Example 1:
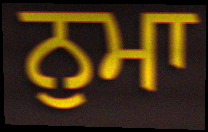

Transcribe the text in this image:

ਨੁਮਾ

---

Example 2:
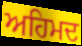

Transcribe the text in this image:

ਅਹਿਮਦ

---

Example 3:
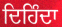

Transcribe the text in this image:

ਦਿਹਿੰਦਾ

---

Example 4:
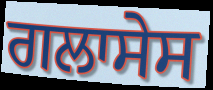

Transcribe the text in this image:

ਗਲਾਸੇਸ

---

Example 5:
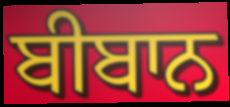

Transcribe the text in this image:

ਬੀਬਾਨ